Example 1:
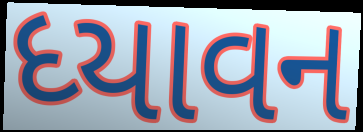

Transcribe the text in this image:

ધ્યાવન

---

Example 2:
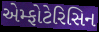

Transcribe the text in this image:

એમ્ફોટેરિસિન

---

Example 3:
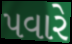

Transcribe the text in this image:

પવારે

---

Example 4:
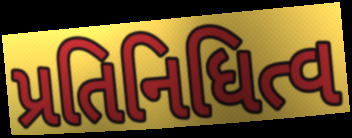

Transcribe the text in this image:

પ્રતિનિધિત્વ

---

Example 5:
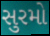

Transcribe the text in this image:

સુરમો